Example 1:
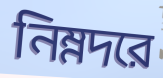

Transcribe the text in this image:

নিম্নদরে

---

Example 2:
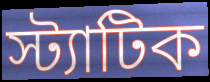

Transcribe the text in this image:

স্ট্যাটিক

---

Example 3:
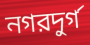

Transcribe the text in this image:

নগরদুর্গ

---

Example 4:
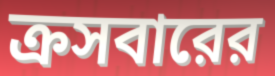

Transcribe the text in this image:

ক্রসবারের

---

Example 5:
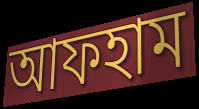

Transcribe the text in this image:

আফহাম